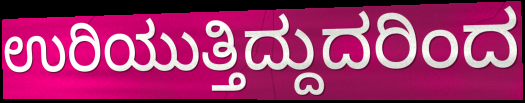
ಉರಿಯುತ್ತಿದ್ದುದರಿಂದ